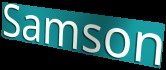
Samson